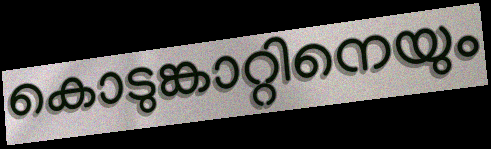
കൊടുങ്കാറ്റിനെയും